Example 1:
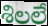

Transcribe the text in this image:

శిలలే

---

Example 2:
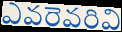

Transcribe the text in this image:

ఎవరెవరివి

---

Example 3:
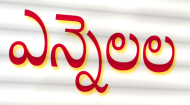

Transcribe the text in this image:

ఎన్నెలల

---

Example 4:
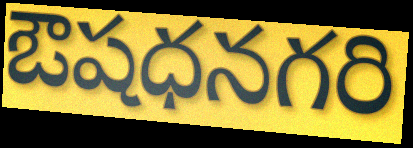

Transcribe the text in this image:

ఔషధనగరి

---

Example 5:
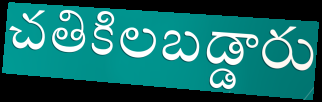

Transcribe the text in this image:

చతికిలబడ్డారు